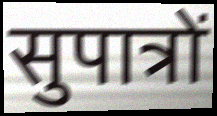
सुपात्रों